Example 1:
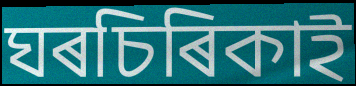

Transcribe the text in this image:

ঘৰচিৰিকাই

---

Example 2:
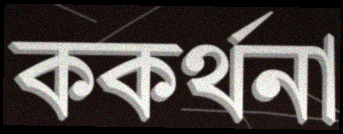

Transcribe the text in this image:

ককৰ্থনা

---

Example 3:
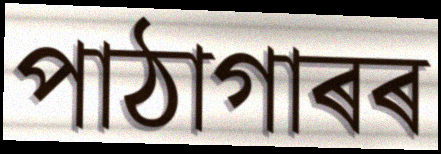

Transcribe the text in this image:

পাঠাগাৰৰ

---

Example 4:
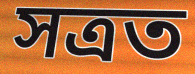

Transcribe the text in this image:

সত্ৰত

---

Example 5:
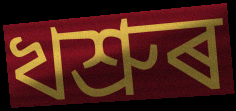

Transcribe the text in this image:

খশ্ৰুৰ